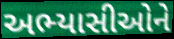
અભ્યાસીઓને